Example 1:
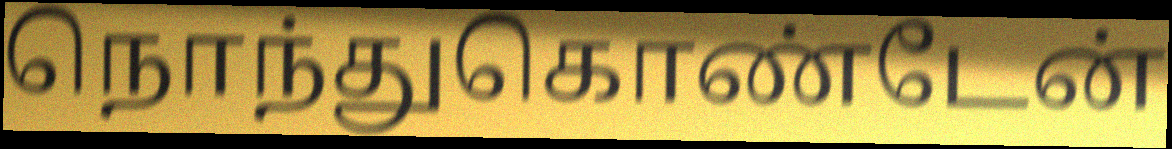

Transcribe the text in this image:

நொந்துகொண்டேன்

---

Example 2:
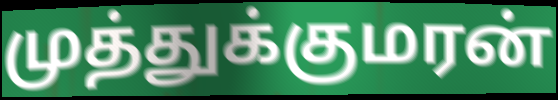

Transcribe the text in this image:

முத்துக்குமரன்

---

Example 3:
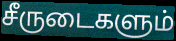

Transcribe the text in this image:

சீருடைகளும்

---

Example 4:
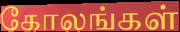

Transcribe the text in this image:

கோலங்கள்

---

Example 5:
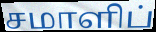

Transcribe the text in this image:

சமாளிப்